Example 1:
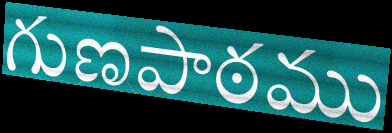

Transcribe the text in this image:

గుణపాఠము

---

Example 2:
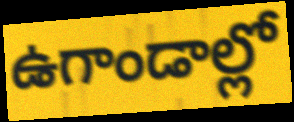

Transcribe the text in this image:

ఉగాండాల్లో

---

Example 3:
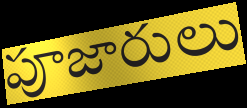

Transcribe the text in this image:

పూజారులు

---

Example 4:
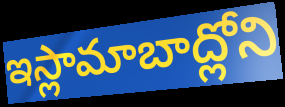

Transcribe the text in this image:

ఇస్లామాబాద్లోని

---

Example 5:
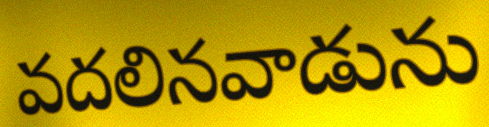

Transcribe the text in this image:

వదలినవాడును